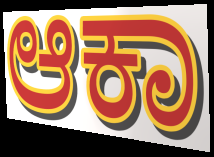
ಆಕಾ